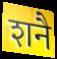
शनै